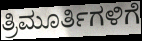
ತ್ರಿಮೂರ್ತಿಗಳಿಗೆ